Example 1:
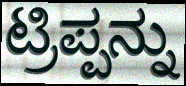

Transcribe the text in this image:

ಟ್ರಿಪ್ಪನ್ನು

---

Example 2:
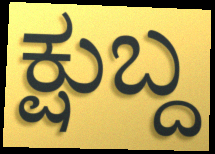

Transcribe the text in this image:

ಕ್ಷುಬ್ದ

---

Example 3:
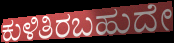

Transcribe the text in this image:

ಕುಳಿತಿರಬಹುದೇ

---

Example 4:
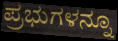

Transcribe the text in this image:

ಪ್ರಭುಗಳನ್ನೂ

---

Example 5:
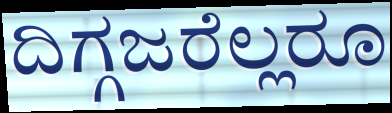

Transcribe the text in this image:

ದಿಗ್ಗಜರೆಲ್ಲರೂ